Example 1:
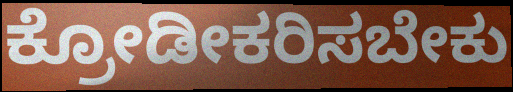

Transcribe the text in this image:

ಕ್ರೋಡೀಕರಿಸಬೇಕು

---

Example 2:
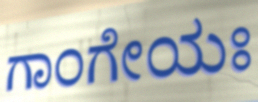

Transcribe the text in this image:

ಗಾಂಗೇಯಃ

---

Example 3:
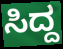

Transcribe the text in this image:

ಸಿದ್ದ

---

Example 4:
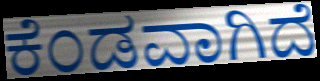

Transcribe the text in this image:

ಕೆಂಡವಾಗಿದೆ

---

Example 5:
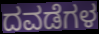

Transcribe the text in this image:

ದವಡೆಗಳ